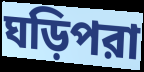
ঘড়িপরা